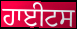
ਹਾਈਟਸ